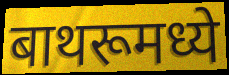
बाथरूमध्ये